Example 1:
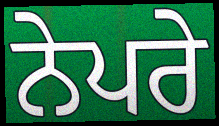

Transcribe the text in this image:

ਨੇਪਰੇ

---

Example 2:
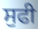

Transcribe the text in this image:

ਸੁਫੀ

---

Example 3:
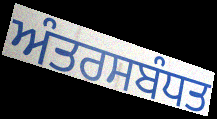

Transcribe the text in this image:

ਅੰਤਰਸਬੰਧਤ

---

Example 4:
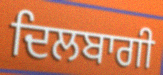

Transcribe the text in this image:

ਦਿਲਬਾਗੀ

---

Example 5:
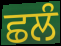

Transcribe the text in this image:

ਛਲੰ